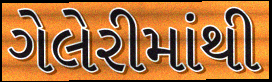
ગેલેરીમાંથી